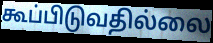
கூப்பிடுவதில்லை